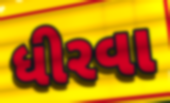
ધીરવા